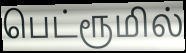
பெட்ரூமில்